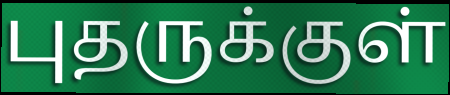
புதருக்குள்